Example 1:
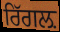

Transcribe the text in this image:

ਰਿੱਗਲ਼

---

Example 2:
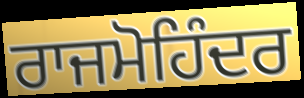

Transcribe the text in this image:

ਰਾਜਮੋਹਿੰਦਰ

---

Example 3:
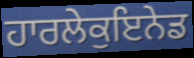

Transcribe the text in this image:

ਹਾਰਲੇਕੁਇਨੇਡ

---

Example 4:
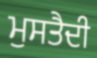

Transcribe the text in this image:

ਮੁਸਤੈਦੀ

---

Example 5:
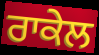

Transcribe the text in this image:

ਰਾਕੇਲ